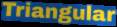
Triangular